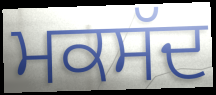
ਮਕਸੱਦ